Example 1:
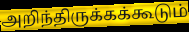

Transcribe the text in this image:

அறிந்திருக்கக்கூடும்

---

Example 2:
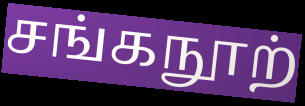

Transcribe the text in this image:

சங்கநூற்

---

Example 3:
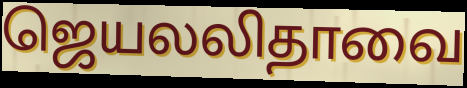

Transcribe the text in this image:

ஜெயலலிதாவை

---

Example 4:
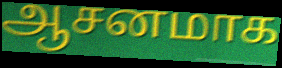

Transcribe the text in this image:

ஆசனமாக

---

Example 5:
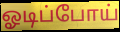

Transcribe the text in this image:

ஓடிப்போய்